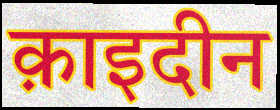
क़ाइदीन